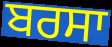
ਬਰਸਾ